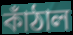
কাঁঠাল